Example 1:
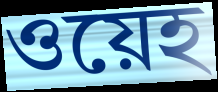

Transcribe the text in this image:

ওয়েহ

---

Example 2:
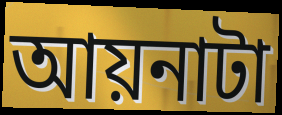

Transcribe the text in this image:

আয়নাটা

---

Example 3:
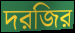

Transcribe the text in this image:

দরজির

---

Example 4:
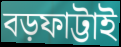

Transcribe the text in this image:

বড়ফাট্টাই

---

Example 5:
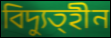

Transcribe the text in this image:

বিদ্যুত্হীন